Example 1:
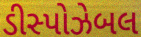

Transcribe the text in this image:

ડીસ્પોઝેબલ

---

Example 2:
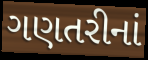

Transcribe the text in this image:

ગણતરીનાં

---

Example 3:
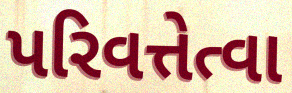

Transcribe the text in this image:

પરિવત્તેત્વા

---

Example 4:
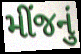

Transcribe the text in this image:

મીંજનું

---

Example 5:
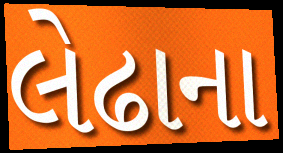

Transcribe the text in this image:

લેઢાના